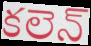
కలెన్